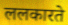
ललकारते